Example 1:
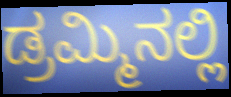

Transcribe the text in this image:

ಡ್ರಮ್ಮಿನಲ್ಲಿ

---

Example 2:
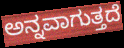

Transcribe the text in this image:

ಅನ್ನವಾಗುತ್ತದೆ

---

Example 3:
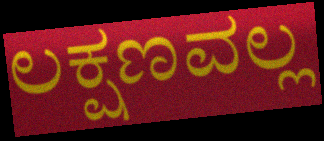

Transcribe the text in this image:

ಲಕ್ಷಣವಲ್ಲ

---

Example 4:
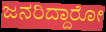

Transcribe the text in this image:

ಜನರಿದ್ದಾರೋ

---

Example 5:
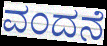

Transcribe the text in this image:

ವಂದನೆ